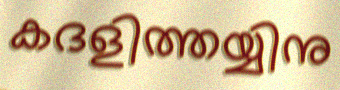
കദളിത്തയ്യിനു